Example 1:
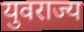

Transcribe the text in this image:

युवराज्य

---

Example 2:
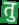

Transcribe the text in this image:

तु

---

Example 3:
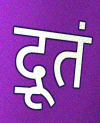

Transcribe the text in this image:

दू॒तं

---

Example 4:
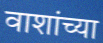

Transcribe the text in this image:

वाशांच्या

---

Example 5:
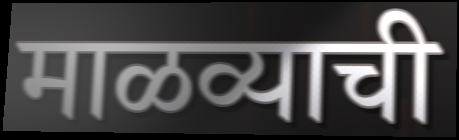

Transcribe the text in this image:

माळव्याची